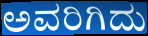
ಅವರಿಗಿದು